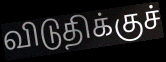
விடுதிக்குச்